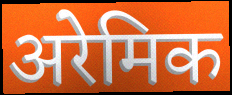
अरेमिक